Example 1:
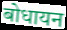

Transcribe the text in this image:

बोधायन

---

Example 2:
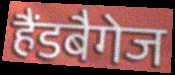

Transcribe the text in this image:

हैंडबैगेज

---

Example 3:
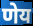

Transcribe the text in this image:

णेय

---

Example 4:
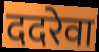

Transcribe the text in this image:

ददरेवा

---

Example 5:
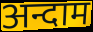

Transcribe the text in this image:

अन्दाम